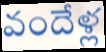
వందేళ్ల